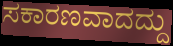
ಸಕಾರಣವಾದದ್ದು